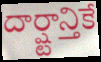
దార్ష్టాన్తికే